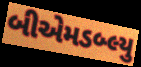
બીએમડબ્લ્યુ